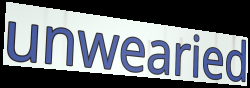
unwearied